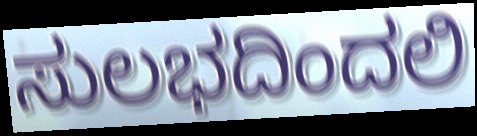
ಸುಲಭದಿಂದಲಿ